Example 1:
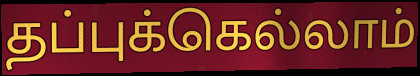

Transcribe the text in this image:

தப்புக்கெல்லாம்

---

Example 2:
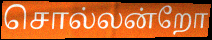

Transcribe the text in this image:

சொல்லன்றோ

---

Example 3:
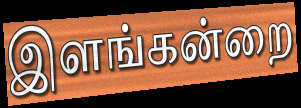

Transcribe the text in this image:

இளங்கன்றை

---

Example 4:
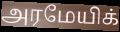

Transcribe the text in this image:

அரமேயிக்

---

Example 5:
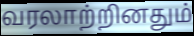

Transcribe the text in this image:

வரலாற்றினதும்